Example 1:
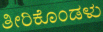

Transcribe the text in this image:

ತೀರಿಕೊಂಡಳು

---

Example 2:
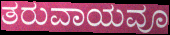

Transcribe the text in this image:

ತರುವಾಯವೂ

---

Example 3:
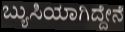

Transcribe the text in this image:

ಬ್ಯುಸಿಯಾಗಿದ್ದೇನೆ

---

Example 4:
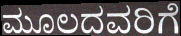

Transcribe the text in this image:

ಮೂಲದವರಿಗೆ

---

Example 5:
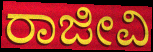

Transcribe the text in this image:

ರಾಜೀವಿ